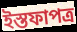
ইস্তফাপত্র